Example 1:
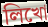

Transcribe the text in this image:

লিখো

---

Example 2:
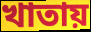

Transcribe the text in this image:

খাতায়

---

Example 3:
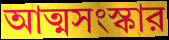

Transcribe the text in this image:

আত্মসংস্কার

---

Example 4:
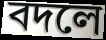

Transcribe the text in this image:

বদলে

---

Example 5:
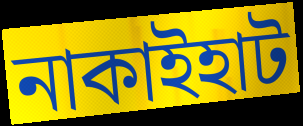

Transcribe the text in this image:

নাকাইহাট